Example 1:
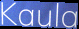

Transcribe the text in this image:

Kaula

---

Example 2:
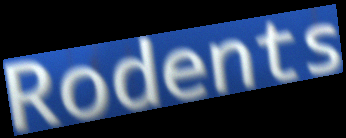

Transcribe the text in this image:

Rodents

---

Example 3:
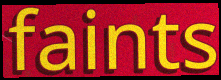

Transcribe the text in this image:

faints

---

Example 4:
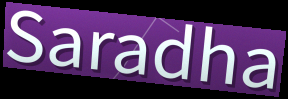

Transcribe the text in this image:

Saradha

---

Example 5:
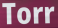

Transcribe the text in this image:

Torr